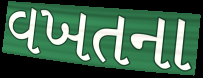
વખતના